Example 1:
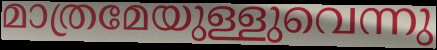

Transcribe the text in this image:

മാത്രമേയുള്ളുവെന്നു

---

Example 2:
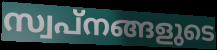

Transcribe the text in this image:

സ്വപ്നങ്ങളുടെ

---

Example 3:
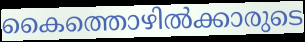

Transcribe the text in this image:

കൈത്തൊഴിൽക്കാരുടെ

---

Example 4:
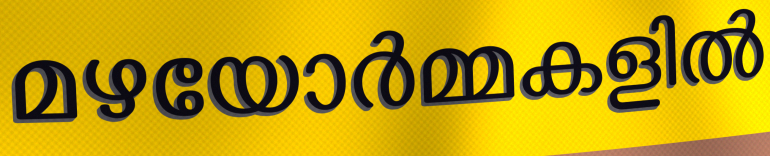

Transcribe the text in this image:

മഴയോർമ്മകളിൽ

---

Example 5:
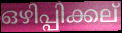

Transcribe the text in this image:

ഒഴിപ്പിക്കല്